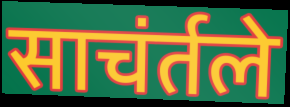
साचंर्तले